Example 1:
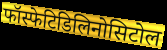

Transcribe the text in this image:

फॉस्फेटिडिलिनोसिटोल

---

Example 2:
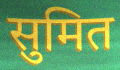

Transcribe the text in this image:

सुमित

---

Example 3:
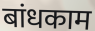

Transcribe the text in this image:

बांधकाम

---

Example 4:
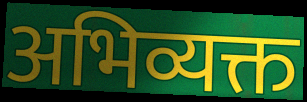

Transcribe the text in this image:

अभिव्यक्त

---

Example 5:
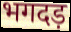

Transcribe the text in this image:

भगदड़